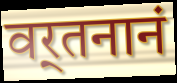
वर्तनानं